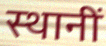
स्थानीं